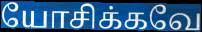
யோசிக்கவே